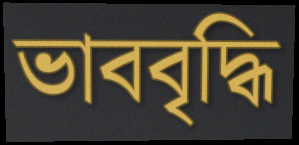
ভাববৃদ্ধি